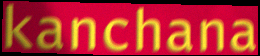
kanchana